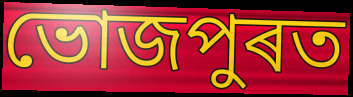
ভোজপুৰত